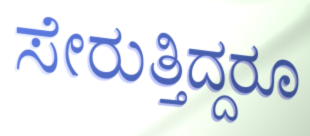
ಸೇರುತ್ತಿದ್ದರೂ